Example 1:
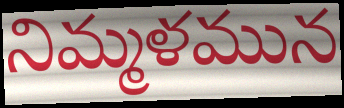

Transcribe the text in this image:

నిమ్మళమున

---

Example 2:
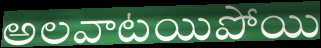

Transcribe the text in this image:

అలవాటయిపోయి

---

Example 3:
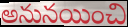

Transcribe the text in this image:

అనునయించి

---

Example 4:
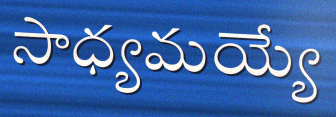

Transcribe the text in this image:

సాధ్యమయ్యే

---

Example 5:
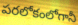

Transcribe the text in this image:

పరలోకంలోగానీ